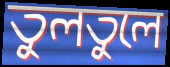
তুলতুলে